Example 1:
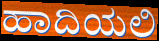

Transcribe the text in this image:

ಹಾದಿಯಲಿ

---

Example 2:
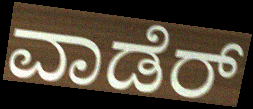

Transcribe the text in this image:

ವಾಡೆರ್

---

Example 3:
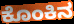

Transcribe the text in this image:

ಕೊಂಕಿನ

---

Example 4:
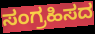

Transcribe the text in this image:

ಸಂಗ್ರಹಿಸದ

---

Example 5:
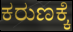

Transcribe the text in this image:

ಕರುಣಕ್ಕೆ